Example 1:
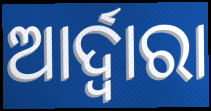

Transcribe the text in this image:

ଆର୍ଦ୍ୱାରା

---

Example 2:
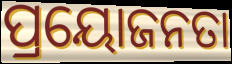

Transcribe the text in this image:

ପ୍ରୟୋଜନତା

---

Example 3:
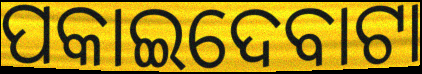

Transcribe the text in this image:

ପକାଇଦେବାଟା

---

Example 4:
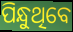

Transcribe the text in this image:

ପିନ୍ଧୁଥିବେ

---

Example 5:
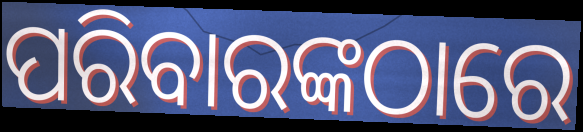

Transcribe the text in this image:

ପରିବାରଙ୍କଠାରେ